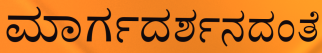
ಮಾರ್ಗದರ್ಶನದಂತೆ